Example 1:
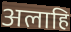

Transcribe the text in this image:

अलाहि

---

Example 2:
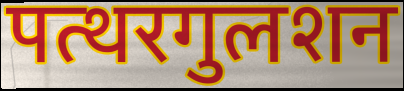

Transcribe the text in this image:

पत्थरगुलशन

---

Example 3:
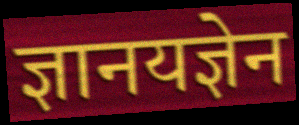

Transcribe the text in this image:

ज्ञानयज्ञेन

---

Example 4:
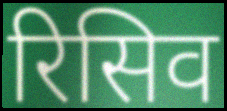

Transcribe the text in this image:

रिसिव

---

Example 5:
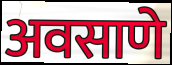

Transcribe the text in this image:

अवसाणे